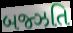
બજ્ઝતિ